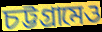
চট্টগ্রামেও